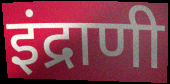
इंद्राणी